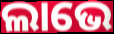
ଲାଭେ